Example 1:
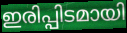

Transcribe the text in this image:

ഇരിപ്പിടമായി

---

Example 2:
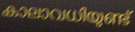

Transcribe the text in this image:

കാലാവധിയുണ്ട്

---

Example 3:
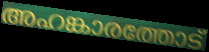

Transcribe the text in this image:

അഹങ്കാരത്തോട്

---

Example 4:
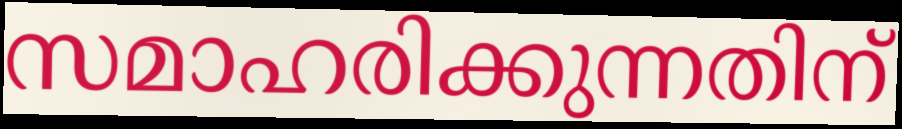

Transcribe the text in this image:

സമാഹരിക്കുന്നതിന്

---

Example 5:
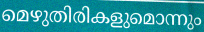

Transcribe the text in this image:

മെഴുതിരികളുമൊന്നും